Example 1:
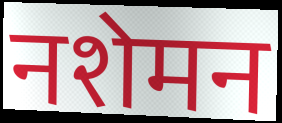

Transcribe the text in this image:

नशेमन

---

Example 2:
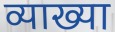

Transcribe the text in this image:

व्याख्या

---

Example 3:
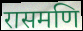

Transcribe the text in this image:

रासमणि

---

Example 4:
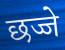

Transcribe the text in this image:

छज्जे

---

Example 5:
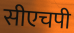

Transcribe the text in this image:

सीएचपी